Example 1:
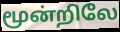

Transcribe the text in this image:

மூன்றிலே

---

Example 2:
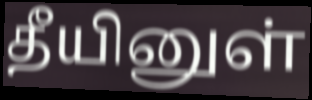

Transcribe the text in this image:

தீயினுள்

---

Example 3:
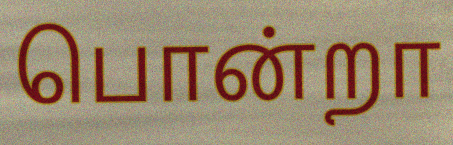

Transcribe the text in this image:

பொன்றா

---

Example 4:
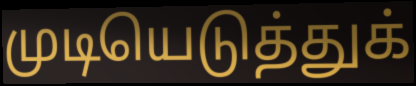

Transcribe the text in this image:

முடியெடுத்துக்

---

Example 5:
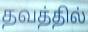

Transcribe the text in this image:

தவத்தில்